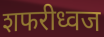
शफरीध्वज